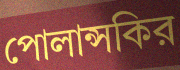
পোলান্সকির